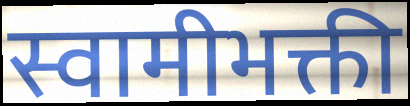
स्वामीभक्ती